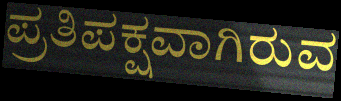
ಪ್ರತಿಪಕ್ಷವಾಗಿರುವ